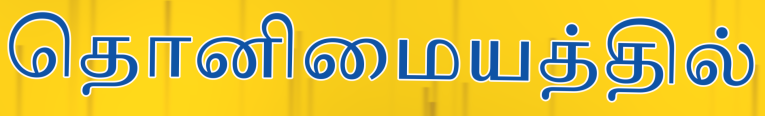
தொனிமையத்தில்